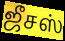
ஜீசஸ்